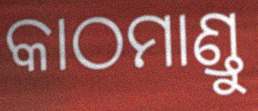
କାଠମାଣ୍ଡୁ